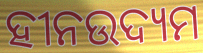
ହୀନଉଦ୍ୟମ